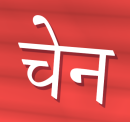
चेन